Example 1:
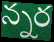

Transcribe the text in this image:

న్నర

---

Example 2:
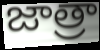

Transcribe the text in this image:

జాత్రా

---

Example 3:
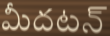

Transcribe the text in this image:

మీదటన్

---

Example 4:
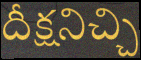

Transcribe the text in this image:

దీక్షనిచ్చి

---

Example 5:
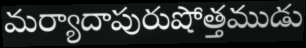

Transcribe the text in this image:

మర్యాదాపురుషోత్తముడు